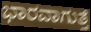
ಭಾರವಾಗುತ್ತೆ